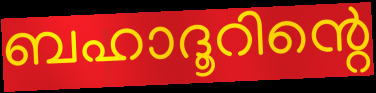
ബഹാദൂറിന്റെ